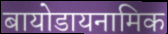
बायोडायनामिक